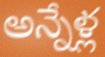
అన్నేళ్ల